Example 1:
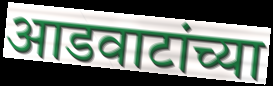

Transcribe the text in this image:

आडवाटांच्या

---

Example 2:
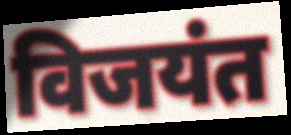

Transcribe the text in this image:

विजयंत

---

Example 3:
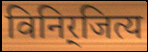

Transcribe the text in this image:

विनिर्जित्य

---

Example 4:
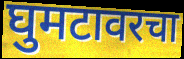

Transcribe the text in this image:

घुमटावरचा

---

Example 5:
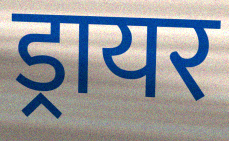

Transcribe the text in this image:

ड्रायर